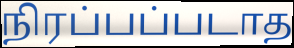
நிரப்பப்படாத